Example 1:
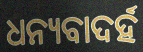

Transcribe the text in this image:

ଧନ୍ୟବାଦର୍ହ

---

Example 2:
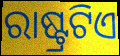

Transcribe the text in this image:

ରାଷ୍ଟ୍ରଟିଏ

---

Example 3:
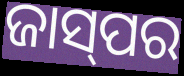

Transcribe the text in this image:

ଜାସ୍‌ପର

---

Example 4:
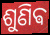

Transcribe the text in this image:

ଶୁଣିଵ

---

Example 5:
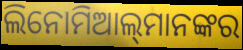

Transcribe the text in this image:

ଲିନୋମିଆଲ୍‌ମାନଙ୍କର